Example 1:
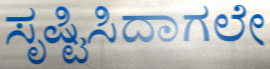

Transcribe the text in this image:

ಸೃಷ್ಟಿಸಿದಾಗಲೇ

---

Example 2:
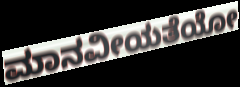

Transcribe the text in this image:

ಮಾನವೀಯತೆಯೋ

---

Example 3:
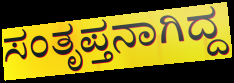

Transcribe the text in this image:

ಸಂತೃಪ್ತನಾಗಿದ್ದ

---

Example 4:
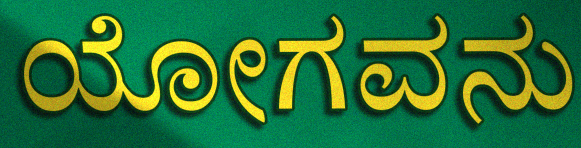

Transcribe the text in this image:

ಯೋಗವನು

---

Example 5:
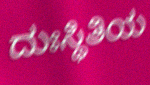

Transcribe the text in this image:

ದುಃಸ್ಥಿತಿಯ